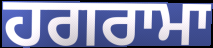
ਹਗਰਾਮਾ